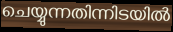
ചെയ്യുന്നതിന്നിടയിൽ